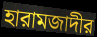
হারামজাদীর